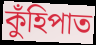
কুঁহিপাত